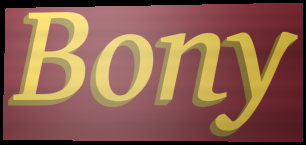
Bony